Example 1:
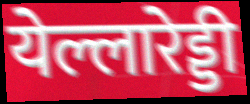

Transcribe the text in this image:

येल्लारेड्डी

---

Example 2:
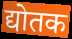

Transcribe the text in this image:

द्योतक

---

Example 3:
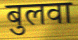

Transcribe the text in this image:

बुलवा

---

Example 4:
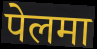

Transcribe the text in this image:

पेलमा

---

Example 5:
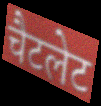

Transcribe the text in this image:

चैटलेट